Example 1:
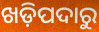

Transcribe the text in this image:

ଖଡ଼ିପଦାରୁ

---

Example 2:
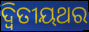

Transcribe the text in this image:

ଦ୍ବିତୀୟଥର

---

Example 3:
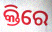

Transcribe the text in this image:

କ୍ତିରେ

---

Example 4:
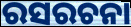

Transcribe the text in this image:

ରସରଚନା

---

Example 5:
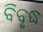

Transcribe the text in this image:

ବିବୃଦ୍ଧ